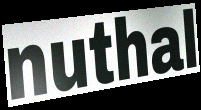
nuthal